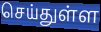
செய்துள்ள